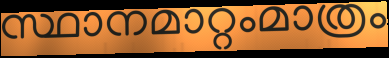
സ്ഥാനമാറ്റംമാത്രം